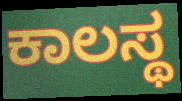
ಕಾಲಸ್ಥ